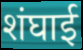
शंघाई